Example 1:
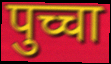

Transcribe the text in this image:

पुच्चा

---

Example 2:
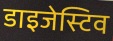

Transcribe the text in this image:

डाइजेस्टिव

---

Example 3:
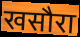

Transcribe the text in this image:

खसौरा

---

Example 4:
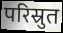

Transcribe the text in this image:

परिस्रुत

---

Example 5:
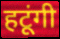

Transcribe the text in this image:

हटूंगी